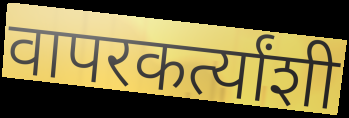
वापरकर्त्यांशी